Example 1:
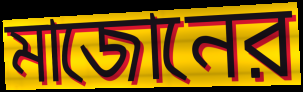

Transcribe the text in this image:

মাজোনের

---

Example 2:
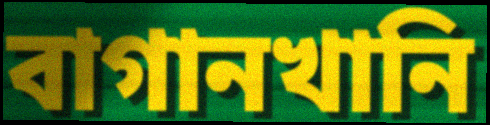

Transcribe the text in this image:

বাগানখানি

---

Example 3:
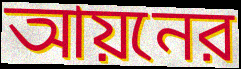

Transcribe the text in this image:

আয়নের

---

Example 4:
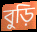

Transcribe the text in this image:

বুড়ি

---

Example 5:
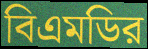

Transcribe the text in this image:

বিএমডির